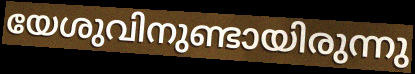
യേശുവിനുണ്ടായിരുന്നു